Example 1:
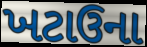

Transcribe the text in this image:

ખટાઉના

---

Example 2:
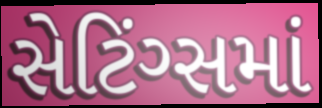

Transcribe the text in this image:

સેટિંગ્સમાં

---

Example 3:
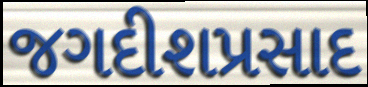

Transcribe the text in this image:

જગદીશપ્રસાદ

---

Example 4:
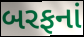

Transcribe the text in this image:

બરફનાં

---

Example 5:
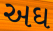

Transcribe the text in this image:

અઘ